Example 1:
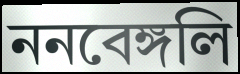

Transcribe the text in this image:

ননবেঙ্গলি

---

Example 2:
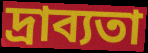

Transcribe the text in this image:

দ্রাব্যতা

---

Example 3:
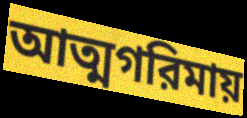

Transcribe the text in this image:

আত্মগরিমায়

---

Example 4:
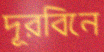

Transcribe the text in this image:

দূরবিনে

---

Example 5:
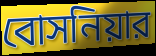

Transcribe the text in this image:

বোসনিয়ার